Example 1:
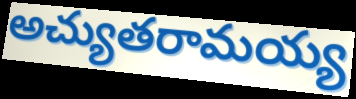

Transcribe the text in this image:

అచ్యుతరామయ్య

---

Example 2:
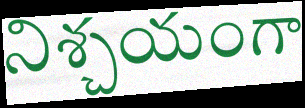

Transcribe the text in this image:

నిశ్చయంగా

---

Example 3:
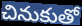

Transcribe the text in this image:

చినుకుతో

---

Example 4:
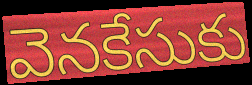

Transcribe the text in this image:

వెనకేసుకు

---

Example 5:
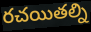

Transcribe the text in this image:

రచయితల్ని